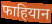
फाहियान